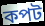
কপট